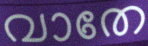
വാതേ